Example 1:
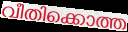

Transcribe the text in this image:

വീതിക്കൊത്ത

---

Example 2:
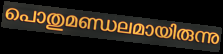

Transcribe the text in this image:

പൊതുമണ്ഡലമായിരുന്നു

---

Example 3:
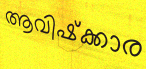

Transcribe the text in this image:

ആവിഷ്‌ക്കാര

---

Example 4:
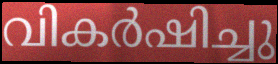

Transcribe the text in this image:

വികർഷിച്ചു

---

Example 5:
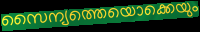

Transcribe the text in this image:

സൈന്യത്തെയൊക്കെയും